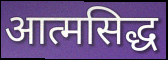
आत्मसिद्ध